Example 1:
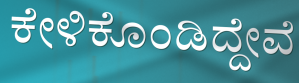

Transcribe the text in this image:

ಕೇಳಿಕೊಂಡಿದ್ದೇವೆ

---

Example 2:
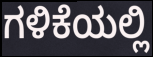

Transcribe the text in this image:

ಗಳಿಕೆಯಲ್ಲಿ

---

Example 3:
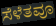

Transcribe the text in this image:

ಸೆಳೆತವೂ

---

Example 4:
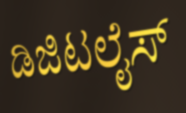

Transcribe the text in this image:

ಡಿಜಿಟಲೈಸ್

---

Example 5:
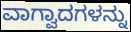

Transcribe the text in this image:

ವಾಗ್ವಾದಗಳನ್ನು